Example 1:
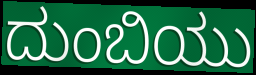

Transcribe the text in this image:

ದುಂಬಿಯು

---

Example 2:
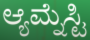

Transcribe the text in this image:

ಆ್ಯಮ್ನೆಸ್ಟಿ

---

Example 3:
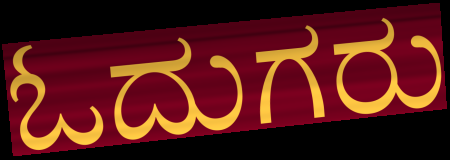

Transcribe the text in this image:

ಓದುಗರು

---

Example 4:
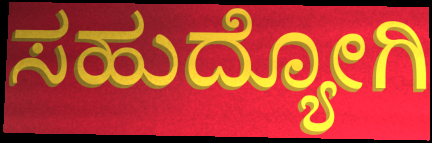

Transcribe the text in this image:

ಸಹುದ್ಯೋಗಿ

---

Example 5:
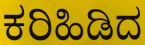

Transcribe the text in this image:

ಕರಿಹಿಡಿದ